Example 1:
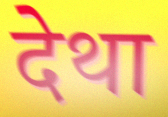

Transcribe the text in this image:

देथा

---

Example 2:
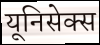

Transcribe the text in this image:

यूनिसेक्स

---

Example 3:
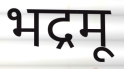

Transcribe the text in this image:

भद्रमू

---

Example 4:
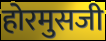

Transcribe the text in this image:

होरमुसजी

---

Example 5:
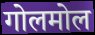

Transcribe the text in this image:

गोलमोल